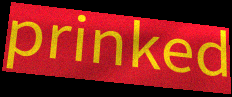
prinked